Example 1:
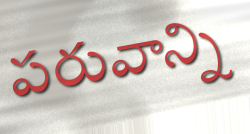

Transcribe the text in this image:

పరువాన్ని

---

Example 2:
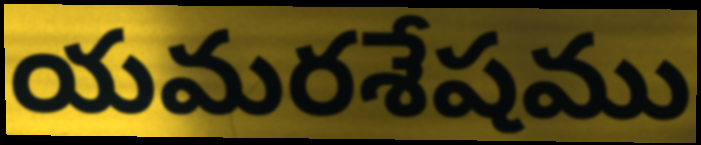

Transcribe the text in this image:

యమరశేషము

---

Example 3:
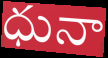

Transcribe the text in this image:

ధునా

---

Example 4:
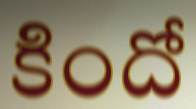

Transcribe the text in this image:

కిందో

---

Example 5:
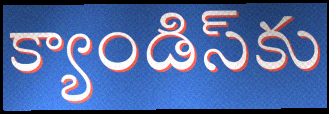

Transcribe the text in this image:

క్యాండిస్‌కు